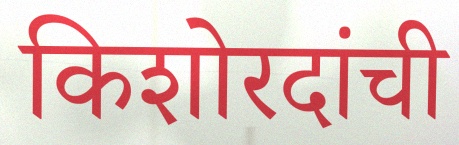
किशोरदांची